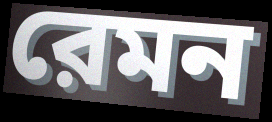
রেমন